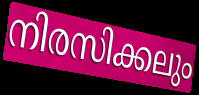
നിരസിക്കലും